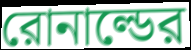
রোনাল্ডের